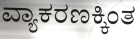
ವ್ಯಾಕರಣಕ್ಕಿಂತ